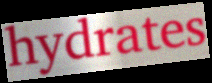
hydrates